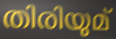
തിരിയുമ്